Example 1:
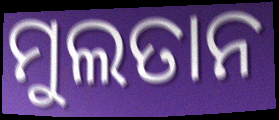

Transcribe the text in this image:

ମୁଲତାନ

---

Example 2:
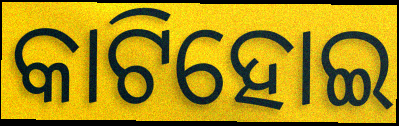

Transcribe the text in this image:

କାଟିହୋଇ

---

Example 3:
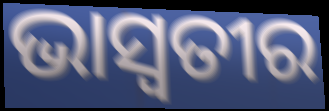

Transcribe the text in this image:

ଭାସ୍ୱତୀର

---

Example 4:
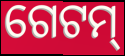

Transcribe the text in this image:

ଗେଟମ୍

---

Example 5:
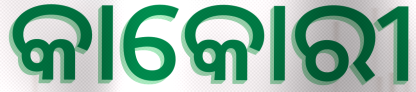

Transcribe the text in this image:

କାକୋରୀ